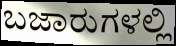
ಬಜಾರುಗಳಲ್ಲಿ